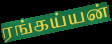
ரங்கய்யன்